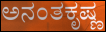
ಅನಂತಕೃಷ್ಣ